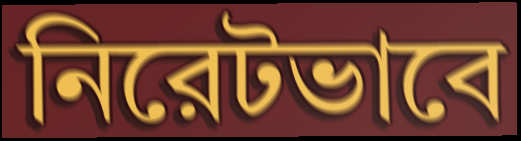
নিরেটভাবে